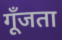
गूँजता